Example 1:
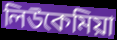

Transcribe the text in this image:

লিউকেমিয়া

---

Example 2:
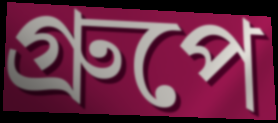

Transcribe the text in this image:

গ্রুপে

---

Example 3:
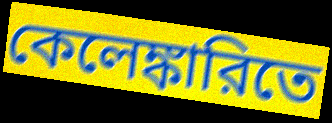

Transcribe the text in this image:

কেলেঙ্কারিতে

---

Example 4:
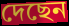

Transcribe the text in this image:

দেছেন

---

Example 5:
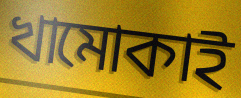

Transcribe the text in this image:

খামোকাই